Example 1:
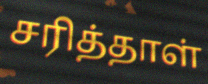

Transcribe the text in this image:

சரித்தாள்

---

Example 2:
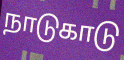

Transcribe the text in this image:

நாடுகாடு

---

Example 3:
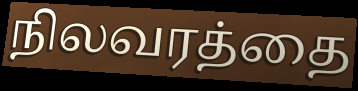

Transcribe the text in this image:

நிலவரத்தை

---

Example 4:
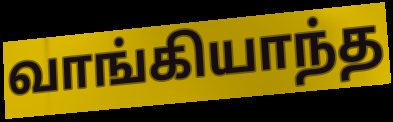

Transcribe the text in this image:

வாங்கியாந்த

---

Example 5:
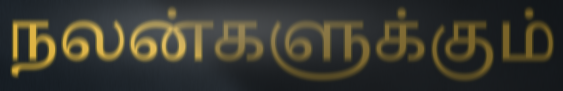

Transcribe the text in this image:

நலன்களுக்கும்